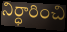
నిర్ధారించి